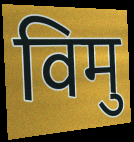
विमु